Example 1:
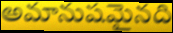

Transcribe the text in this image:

అమానుషమైనది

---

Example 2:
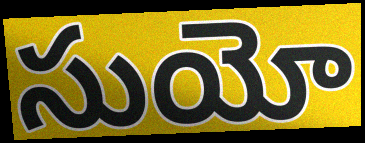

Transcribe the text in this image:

సుయో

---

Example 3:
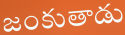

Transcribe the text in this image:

జంకుతాడు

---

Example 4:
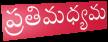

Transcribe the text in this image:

ప్రతిమధ్యమ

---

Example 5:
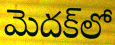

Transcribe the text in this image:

మెదక్‌లో